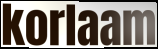
korlaam